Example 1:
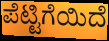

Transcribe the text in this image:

ಪೆಟ್ಟಿಗೆಯಿದೆ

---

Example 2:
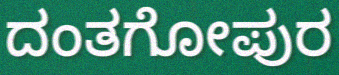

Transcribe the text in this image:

ದಂತಗೋಪುರ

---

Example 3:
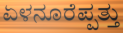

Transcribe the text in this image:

ಏಳನೂರೆಪ್ಪತ್ತು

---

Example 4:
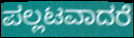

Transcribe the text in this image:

ಪಲ್ಲಟವಾದರೆ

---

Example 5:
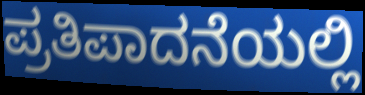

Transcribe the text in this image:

ಪ್ರತಿಪಾದನೆಯಲ್ಲಿ